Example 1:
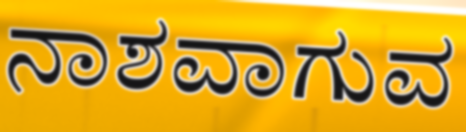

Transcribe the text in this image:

ನಾಶವಾಗುವ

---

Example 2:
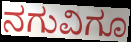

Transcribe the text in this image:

ನಗುವಿಗೂ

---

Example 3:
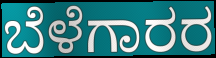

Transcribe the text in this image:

ಬೆಳೆಗಾರರ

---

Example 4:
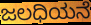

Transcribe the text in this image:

ಜಲಧಿಯನೆ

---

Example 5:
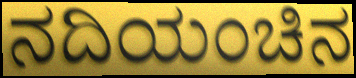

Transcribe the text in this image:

ನದಿಯಂಚಿನ